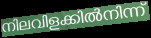
നിലവിളക്കിൽനിന്ന്